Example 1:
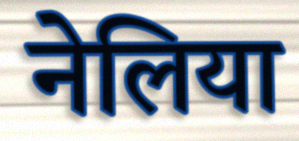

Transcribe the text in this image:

नेलिया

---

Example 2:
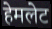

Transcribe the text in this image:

हेमलेट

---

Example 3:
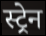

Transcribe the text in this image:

स्ट्रेन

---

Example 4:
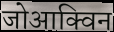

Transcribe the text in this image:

जोआक्विन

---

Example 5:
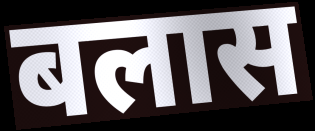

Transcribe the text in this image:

बलास